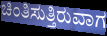
ಚಿಂತಿಸುತ್ತಿರುವಾಗ